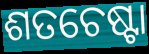
ଶତଚେଷ୍ଟା